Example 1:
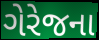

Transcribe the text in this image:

ગેરેજના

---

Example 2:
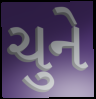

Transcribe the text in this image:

ચુને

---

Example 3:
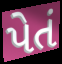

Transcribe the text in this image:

પેતં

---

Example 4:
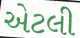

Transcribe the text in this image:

એટલી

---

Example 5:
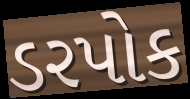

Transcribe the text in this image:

ડરપોક